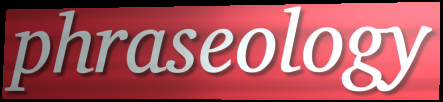
phraseology